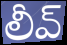
లీవ్